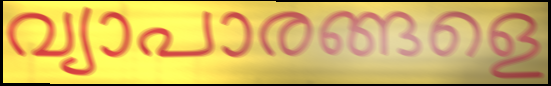
വ്യാപാരങ്ങളെ